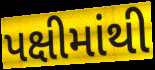
પક્ષીમાંથી